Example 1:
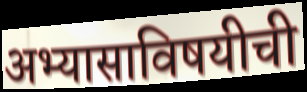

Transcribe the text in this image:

अभ्यासाविषयीची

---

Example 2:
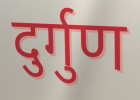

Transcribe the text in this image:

दुर्गुण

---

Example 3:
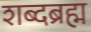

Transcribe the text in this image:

शब्दब्रह्म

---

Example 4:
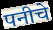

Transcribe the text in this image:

पनीचे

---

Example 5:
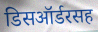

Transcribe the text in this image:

डिसऑर्डरसह